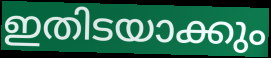
ഇതിടയാക്കും